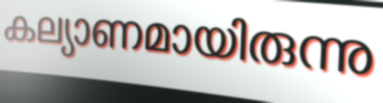
കല്യാണമായിരുന്നു